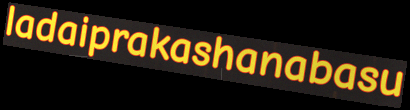
ladaiprakashanabasu